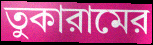
তুকারামের